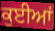
ਕੁਈਆਂ